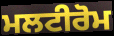
ਮਲਟੀਰੋਮ